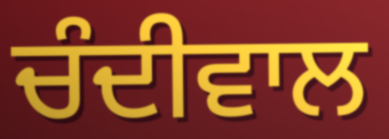
ਚੰਦੀਵਾਲ